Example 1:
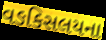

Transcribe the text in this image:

વઙકિસલયના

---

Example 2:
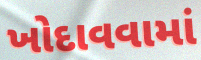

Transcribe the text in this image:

ખોદાવવામાં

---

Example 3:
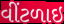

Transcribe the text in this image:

વીંટળાઇ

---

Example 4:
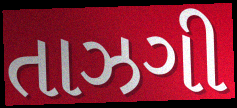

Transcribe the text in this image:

તાઝગી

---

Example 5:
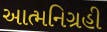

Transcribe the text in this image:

આત્મનિગ્રહી